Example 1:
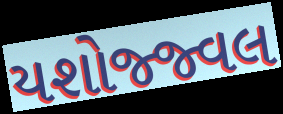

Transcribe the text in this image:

યશોજ્જ્વલ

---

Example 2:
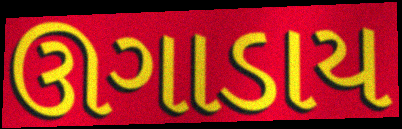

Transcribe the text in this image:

ઊગાડાય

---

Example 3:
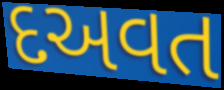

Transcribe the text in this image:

દઅવત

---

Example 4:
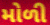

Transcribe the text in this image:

મોળી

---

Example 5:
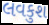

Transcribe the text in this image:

લવકુશ